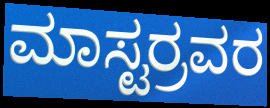
ಮಾಸ್ಟರ್ರವರ